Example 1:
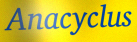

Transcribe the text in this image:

Anacyclus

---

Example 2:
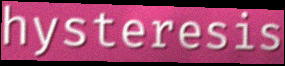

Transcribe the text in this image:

hysteresis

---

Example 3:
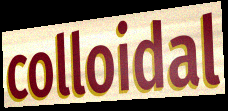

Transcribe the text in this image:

colloidal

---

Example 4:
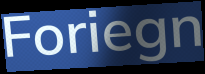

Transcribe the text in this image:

Foriegn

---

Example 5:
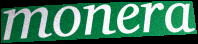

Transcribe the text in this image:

monera